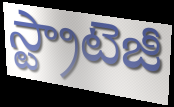
స్ట్రాటెజీ